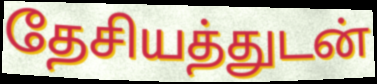
தேசியத்துடன்